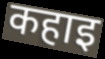
कहाइ